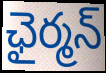
ఛైర్మన్